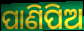
ପାଣିପିଅ